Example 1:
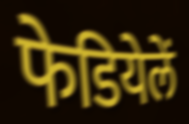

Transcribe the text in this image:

फेडियेलें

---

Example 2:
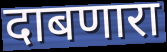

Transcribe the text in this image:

दाबणारा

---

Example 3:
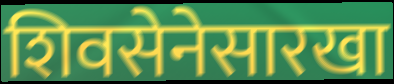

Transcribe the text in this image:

शिवसेनेसारखा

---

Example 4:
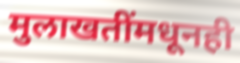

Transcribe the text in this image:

मुलाखतींमधूनही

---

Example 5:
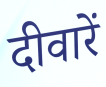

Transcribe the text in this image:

दीवारें